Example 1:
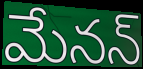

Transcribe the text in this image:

మేనన్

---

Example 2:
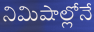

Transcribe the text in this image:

నిమిషాల్లోనే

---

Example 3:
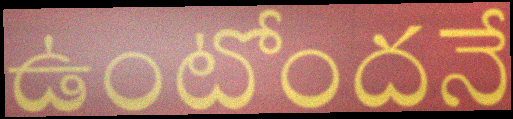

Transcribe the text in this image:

ఉంటోందనే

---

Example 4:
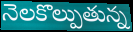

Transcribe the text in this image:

నెలకొల్పుతున్న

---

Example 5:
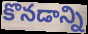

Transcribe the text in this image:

కొనడాన్ని